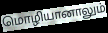
மொழியானாலும்